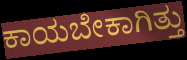
ಕಾಯಬೇಕಾಗಿತ್ತು